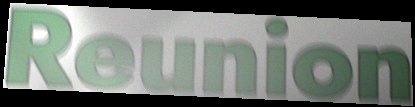
Reunion